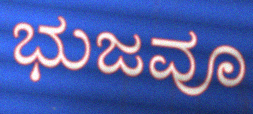
ಭುಜವೂ